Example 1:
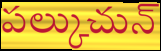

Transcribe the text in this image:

పల్కుచున్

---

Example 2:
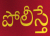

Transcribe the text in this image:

పోలీస్తే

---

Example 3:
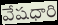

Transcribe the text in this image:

వేషధారి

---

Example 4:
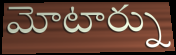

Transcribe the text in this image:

మోటార్ను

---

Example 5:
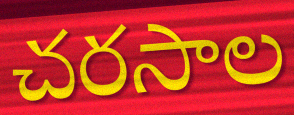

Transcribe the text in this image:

చరసాల